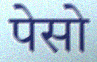
पेसो